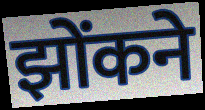
झोंकने